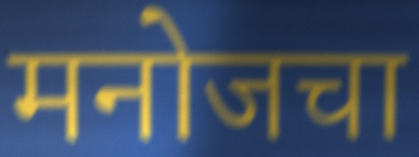
मनोजचा